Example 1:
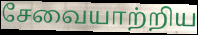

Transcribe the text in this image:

சேவையாற்றிய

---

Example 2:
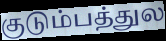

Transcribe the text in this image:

குடும்பத்துல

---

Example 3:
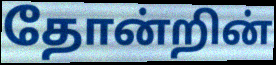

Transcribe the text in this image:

தோன்றின்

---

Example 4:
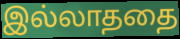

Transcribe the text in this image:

இல்லாததை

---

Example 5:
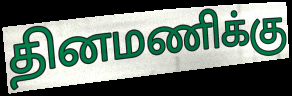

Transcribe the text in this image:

தினமணிக்கு